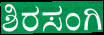
ಶಿರಸಂಗಿ